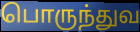
பொருந்துவ